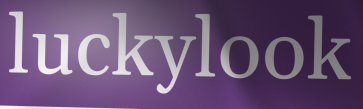
luckylook